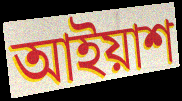
আইয়াশ